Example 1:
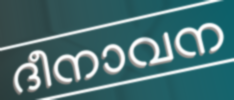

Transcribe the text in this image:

ദീനാവന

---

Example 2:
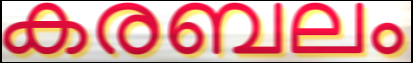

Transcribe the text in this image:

കരബലം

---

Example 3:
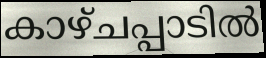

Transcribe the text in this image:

കാഴ്ചപ്പാടിൽ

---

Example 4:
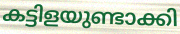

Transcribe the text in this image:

കട്ടിളയുണ്ടാക്കി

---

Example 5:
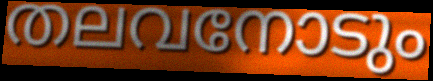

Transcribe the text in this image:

തലവനോടും